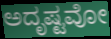
ಅದೃಷ್ಟವೋ